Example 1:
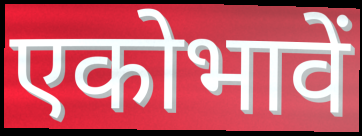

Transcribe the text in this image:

एकोभावें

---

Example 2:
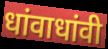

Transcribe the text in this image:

धांवाधांवी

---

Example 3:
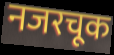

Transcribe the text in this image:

नजरचूक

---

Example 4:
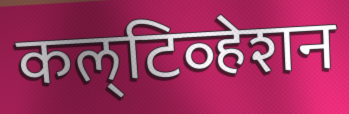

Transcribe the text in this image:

कल्टिव्हेशन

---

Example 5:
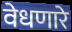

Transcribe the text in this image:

वेधणारे